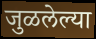
जुळलेल्या